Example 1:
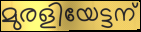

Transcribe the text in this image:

മുരളിയേട്ടന്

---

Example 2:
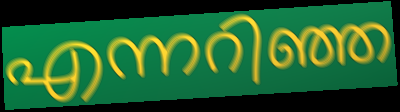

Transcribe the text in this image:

എന്നറിഞ്ഞ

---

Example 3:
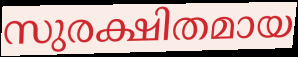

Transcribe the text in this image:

സുരക്ഷിതമായ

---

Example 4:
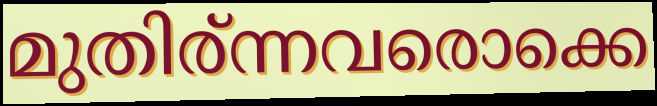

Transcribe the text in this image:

മുതിര്ന്നവരൊക്കെ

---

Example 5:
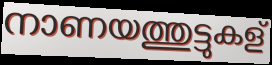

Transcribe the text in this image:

നാണയത്തുട്ടുകള്